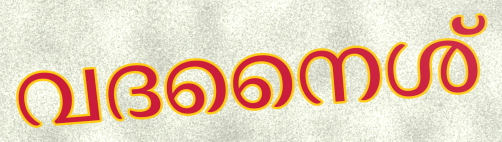
വദനൈശ്